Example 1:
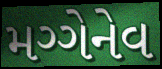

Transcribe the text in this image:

મગ્ગેનેવ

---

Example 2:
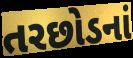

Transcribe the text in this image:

તરછોડનાં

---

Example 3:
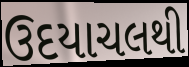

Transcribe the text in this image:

ઉદયાચલથી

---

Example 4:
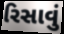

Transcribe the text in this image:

રિસાવું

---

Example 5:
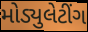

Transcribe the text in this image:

મોડ્યુલેટીંગ